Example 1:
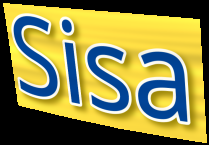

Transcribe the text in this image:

Sisa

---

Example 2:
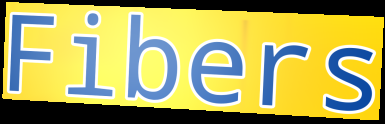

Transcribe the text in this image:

Fibers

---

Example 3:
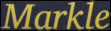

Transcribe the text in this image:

Markle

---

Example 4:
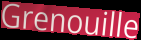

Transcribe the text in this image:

Grenouille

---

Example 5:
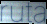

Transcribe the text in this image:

ruta